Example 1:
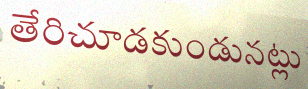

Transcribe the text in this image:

తేరిచూడకుండునట్లు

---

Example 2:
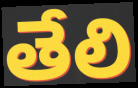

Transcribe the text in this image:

తేలి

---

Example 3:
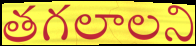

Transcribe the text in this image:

తగలాలని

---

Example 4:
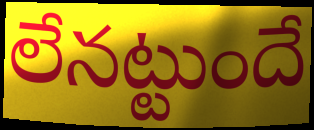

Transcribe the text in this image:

లేనట్టుందే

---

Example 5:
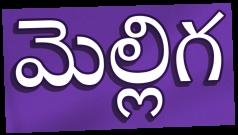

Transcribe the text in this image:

మెల్లిగ